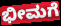
ಭೀಮಗೆ